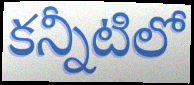
కన్నీటిలో